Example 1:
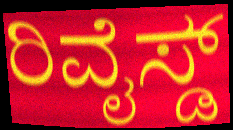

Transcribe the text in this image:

ರಿವೈಸ್ಡ್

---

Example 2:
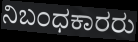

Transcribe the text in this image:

ನಿಬಂಧಕಾರರು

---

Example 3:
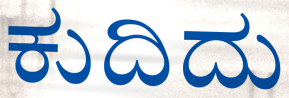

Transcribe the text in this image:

ಕುದಿದು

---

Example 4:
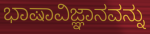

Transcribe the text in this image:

ಭಾಷಾವಿಜ್ಞಾನವನ್ನು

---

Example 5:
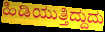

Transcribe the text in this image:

ಹಿಡಿಯುತ್ತಿದ್ದುದು